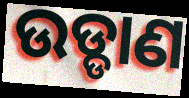
ଉଡ୍ଡାଣ